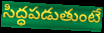
సిద్ధపడుతుంటే